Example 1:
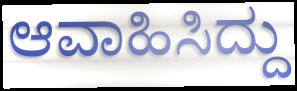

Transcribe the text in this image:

ಆವಾಹಿಸಿದ್ದು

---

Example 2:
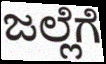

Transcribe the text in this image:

ಜಲ್ಲೆಗೆ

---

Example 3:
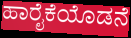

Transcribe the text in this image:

ಹಾರೈಕೆಯೊಡನೆ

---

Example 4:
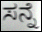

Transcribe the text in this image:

ಸನ್ನೆ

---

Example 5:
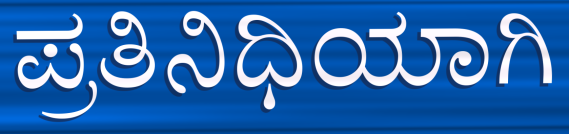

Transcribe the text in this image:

ಪ್ರತಿನಿಧಿಯಾಗಿ